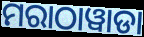
ମରାଠାୱାଡା